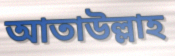
আতাউল্লাহ